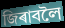
জিৰাবলৈ